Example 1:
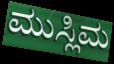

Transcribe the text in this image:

ಮುಸ್ಲಿಮ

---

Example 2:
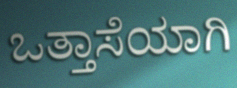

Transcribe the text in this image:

ಒತ್ತಾಸೆಯಾಗಿ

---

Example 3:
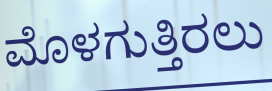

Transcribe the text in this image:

ಮೊಳಗುತ್ತಿರಲು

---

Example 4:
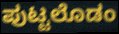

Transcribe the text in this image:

ಪುಟ್ಟಲೊಡಂ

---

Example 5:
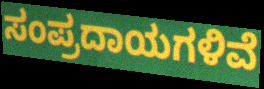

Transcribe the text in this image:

ಸಂಪ್ರದಾಯಗಳಿವೆ